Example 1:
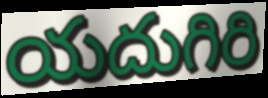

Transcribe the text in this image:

యదుగిరి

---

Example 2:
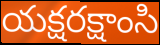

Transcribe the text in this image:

యక్షరక్షాంసి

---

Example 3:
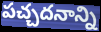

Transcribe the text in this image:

పచ్చదనాన్ని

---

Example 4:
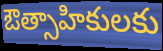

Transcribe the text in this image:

ఔత్సాహికులకు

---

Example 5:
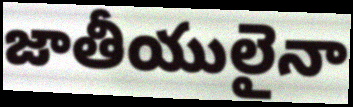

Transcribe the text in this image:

జాతీయులైనా